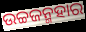
ଉଚ୍ଚଜନ୍ମହାର